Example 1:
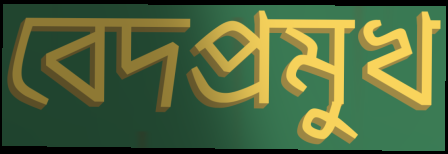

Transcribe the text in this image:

বেদপ্রমুখ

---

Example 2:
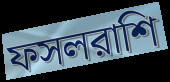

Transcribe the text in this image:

ফসলরাশি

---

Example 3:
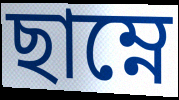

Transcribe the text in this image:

ছাম্নে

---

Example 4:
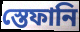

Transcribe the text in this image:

স্তেফানি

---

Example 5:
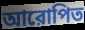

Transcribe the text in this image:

আরোপিত